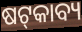
ଷଟ୍‌କାବ୍ୟ